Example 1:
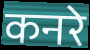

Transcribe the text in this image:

कनरे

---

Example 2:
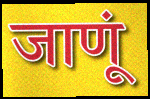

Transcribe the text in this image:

जाणूं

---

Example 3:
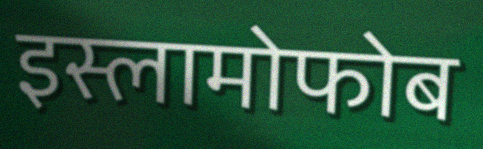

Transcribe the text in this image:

इस्लामोफोब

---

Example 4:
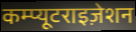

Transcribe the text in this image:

कम्प्यूटराइज़ेशन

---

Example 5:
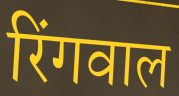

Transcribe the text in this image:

रिंगवाल